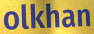
olkhan